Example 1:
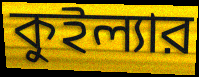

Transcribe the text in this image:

কুইল্যার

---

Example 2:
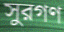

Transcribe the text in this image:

সুরগণ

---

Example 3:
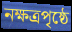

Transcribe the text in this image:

নক্ষত্রপৃষ্ঠে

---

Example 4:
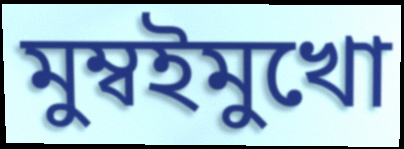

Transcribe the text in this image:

মুম্বইমুখো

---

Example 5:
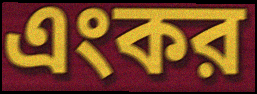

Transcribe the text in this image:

এংকর